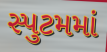
સ્પુટમમાં